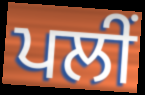
ਪਲੀਂ